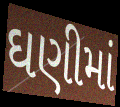
ઘણીમાં